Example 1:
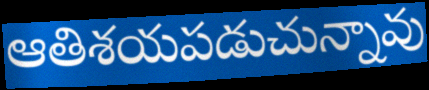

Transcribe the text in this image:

ఆతిశయపడుచున్నావు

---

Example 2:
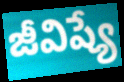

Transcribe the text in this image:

జీవిష్యే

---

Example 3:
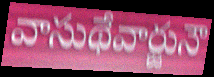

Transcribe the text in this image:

వాసుథేవార్జునౌ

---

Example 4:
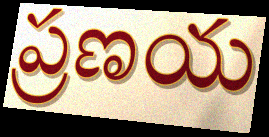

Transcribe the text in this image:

ప్రణయ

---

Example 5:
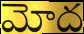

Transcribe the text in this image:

మోద